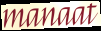
manaat